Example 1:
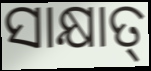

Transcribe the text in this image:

ସାକ୍ଷାତ୍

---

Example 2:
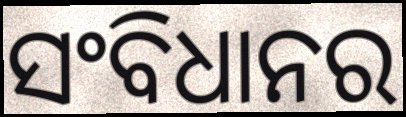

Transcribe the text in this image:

ସଂବିଧାନର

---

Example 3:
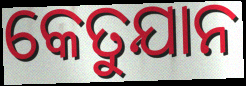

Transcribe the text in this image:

କେତୁଯାନ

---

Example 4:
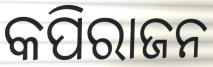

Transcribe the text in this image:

କପିରାଜନ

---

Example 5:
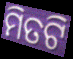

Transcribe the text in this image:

ମିତଟି